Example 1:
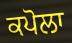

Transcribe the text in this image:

ਕਪੋਲਾ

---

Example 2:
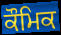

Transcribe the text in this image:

ਕੌਮਿਕ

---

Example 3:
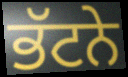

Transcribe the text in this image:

ਭੱਟਨੇ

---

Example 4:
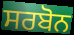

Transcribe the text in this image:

ਸਰਬੋਨ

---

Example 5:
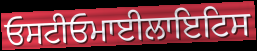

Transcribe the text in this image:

ਓਸਟੀਓਮਾਈਲਾਇਟਿਸ